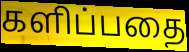
களிப்பதை